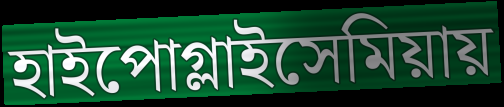
হাইপোগ্লাইসেমিয়ায়